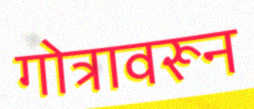
गोत्रावरून